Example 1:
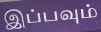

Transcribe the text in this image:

இப்பவும்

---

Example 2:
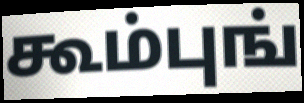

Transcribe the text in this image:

கூம்புங்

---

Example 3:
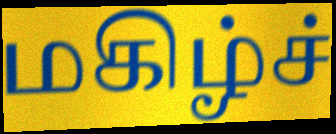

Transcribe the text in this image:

மகிழ்ச்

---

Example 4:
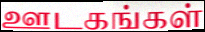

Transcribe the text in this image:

ஊடகங்கள்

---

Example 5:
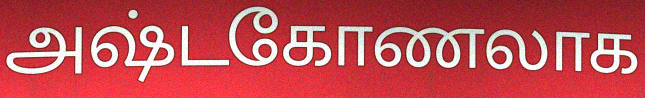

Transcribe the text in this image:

அஷ்டகோணலாக